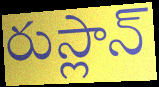
రుస్లాన్